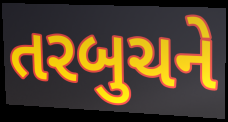
તરબુચને